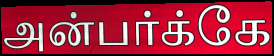
அன்பர்க்கே